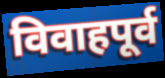
विवाहपूर्व